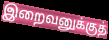
இறைவனுக்குத்